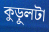
কুড়ুলটা